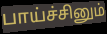
பாய்ச்சினும்